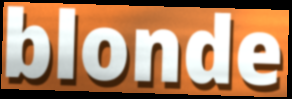
blonde